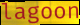
lagoon